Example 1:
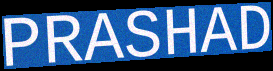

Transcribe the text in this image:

PRASHAD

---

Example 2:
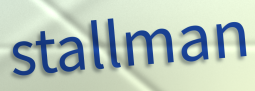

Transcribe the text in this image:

stallman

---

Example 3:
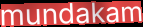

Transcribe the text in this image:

mundakam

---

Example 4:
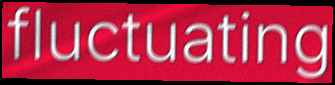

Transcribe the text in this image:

fluctuating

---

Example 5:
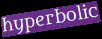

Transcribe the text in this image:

hyperbolic